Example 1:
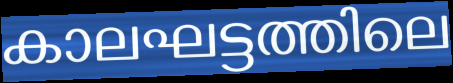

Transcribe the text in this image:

കാലഘട്ടത്തിലെ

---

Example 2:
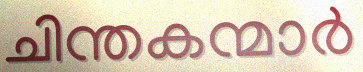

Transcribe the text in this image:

ചിന്തകന്മാർ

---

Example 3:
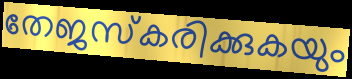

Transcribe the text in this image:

തേജസ്കരിക്കുകയും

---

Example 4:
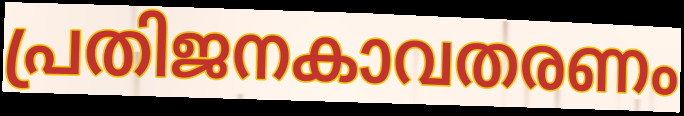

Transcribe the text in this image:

പ്രതിജനകാവതരണം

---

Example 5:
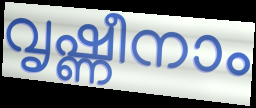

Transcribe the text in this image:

വൃഷ്ണീനാം